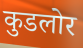
कुडलोर